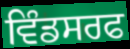
ਵਿੰਡਸਰਫ